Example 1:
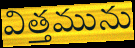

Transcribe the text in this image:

విత్తమును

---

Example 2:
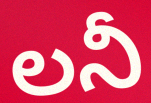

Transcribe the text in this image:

లనీ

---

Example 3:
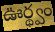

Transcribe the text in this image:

ఊర్థ్వం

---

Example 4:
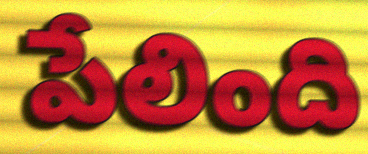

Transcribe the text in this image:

పేలింది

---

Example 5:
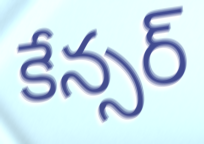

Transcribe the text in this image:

కేన్సర్